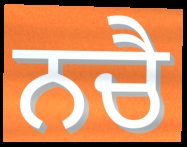
ਨਚੈ